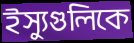
ইস্যুগুলিকে